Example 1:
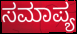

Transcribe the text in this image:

ಸಮಾಪ್ಯ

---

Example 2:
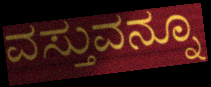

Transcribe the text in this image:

ವಸ್ತುವನ್ನೂ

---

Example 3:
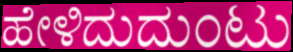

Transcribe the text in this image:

ಹೇಳಿದುದುಂಟು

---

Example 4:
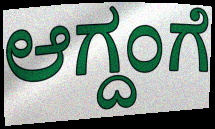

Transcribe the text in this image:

ಆಗ್ದಂಗೆ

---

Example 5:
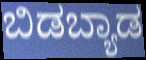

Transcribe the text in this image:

ಬಿಡಬ್ಯಾಡ